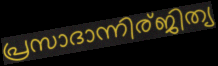
പ്രസാദാന്നിര്ജിത്യ